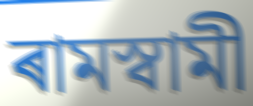
ৰামস্বামী